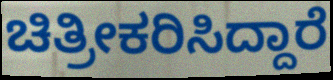
ಚಿತ್ರೀಕರಿಸಿದ್ದಾರೆ